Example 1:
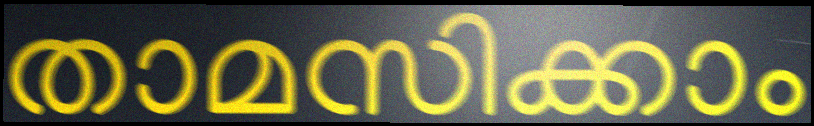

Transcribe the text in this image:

താമസിക്കാം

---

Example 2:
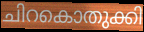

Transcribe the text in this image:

ചിറകൊതുക്കി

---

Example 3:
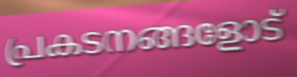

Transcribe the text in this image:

പ്രകടനങ്ങളോട്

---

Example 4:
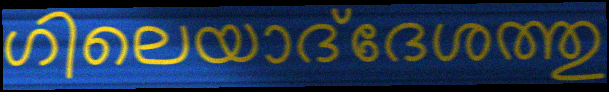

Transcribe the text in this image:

ഗിലെയാദ്‌ദേശത്തു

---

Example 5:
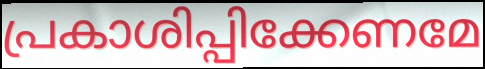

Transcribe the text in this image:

പ്രകാശിപ്പിക്കേണമേ